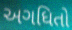
અગધિતો